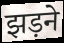
झड़ने